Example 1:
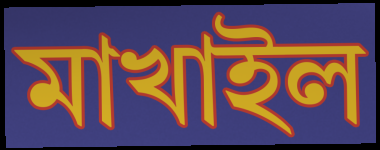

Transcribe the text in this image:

মাখাইল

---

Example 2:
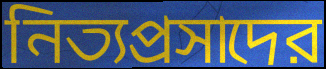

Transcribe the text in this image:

নিত্যপ্রসাদের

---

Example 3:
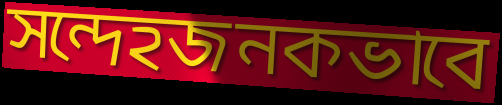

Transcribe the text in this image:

সন্দেহজনকভাবে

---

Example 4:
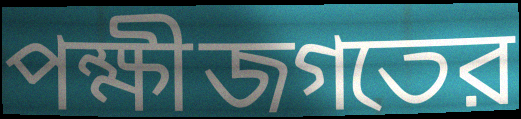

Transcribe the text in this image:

পক্ষীজগতের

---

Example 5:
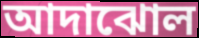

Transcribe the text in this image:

আদাঝোল